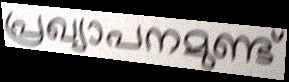
പ്രഖ്യാപനമുണ്ട്